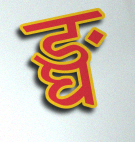
ङ्घ